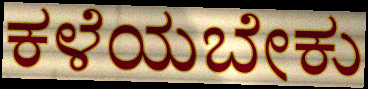
ಕಳೆಯಬೇಕು